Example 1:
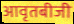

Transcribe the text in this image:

आवृतबीजी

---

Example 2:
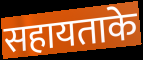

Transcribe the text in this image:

सहायताके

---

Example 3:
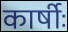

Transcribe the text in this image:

कार्षीः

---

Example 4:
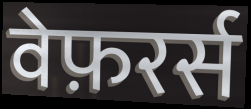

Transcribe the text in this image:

वेफ़रर्स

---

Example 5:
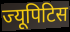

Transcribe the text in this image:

ज्यूपिटिस